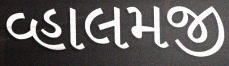
વ્હાલમજી